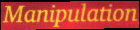
Manipulation